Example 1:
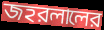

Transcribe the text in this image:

জহরলালের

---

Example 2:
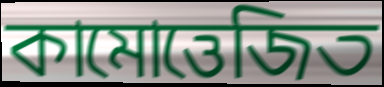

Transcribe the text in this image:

কামোত্তেজিত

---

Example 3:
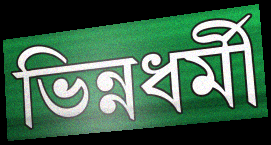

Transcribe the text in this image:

ভিন্নধর্মী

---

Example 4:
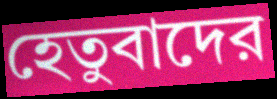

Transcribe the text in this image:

হেতুবাদের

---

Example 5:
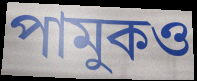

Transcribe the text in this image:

পামুকও